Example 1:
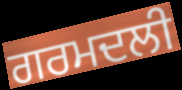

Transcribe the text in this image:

ਗਰਮਦਲੀ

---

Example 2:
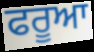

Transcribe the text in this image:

ਫਰੂਆ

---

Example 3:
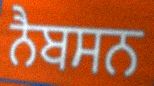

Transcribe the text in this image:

ਨੈਬਸਨ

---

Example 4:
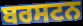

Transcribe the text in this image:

ਬਰਸਟਨ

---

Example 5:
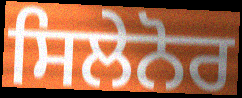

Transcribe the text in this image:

ਸਿਲੇਨੋਰ